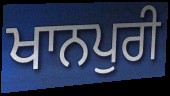
ਖਾਨਪੁਰੀ